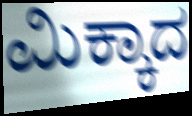
ಮಿಕ್ಕಾದ